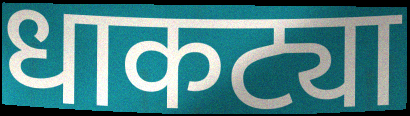
धाकट्या